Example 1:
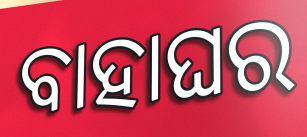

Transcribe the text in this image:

ବାହାଘର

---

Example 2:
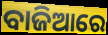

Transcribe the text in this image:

ବାଜିଆରେ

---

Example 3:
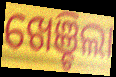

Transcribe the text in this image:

ଖେଞ୍ଚିଲା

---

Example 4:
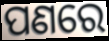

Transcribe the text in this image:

ପଣରେ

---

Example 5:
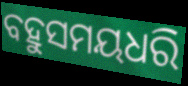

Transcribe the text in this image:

ବହୁସମୟଧରି